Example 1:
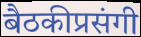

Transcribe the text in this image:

बैठकीप्रसंगी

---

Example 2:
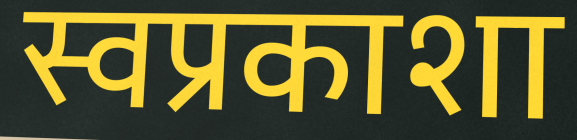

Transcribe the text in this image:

स्वप्रकाशा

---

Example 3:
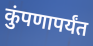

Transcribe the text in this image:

कुंपणापर्यंत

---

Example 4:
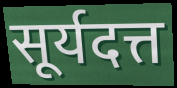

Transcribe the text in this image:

सूर्यदत्त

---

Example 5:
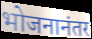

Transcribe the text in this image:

भोजनानंतर